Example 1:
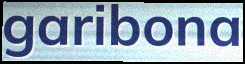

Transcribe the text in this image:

garibona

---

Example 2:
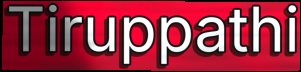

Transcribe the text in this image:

Tiruppathi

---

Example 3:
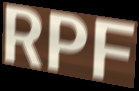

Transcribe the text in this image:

RPF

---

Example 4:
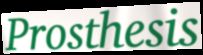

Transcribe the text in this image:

Prosthesis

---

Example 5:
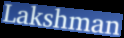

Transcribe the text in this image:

Lakshman